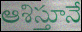
ఆశిస్తూనే